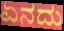
ಏನದು